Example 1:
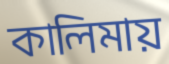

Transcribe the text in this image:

কালিমায়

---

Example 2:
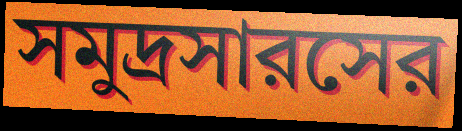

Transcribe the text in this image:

সমুদ্রসারসের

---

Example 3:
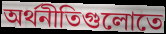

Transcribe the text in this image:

অর্থনীতিগুলোতে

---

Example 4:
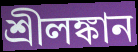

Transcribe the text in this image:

শ্রীলঙ্কান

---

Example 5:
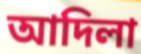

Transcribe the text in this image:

আদিলা